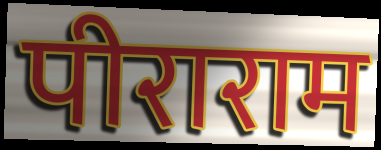
पीराराम